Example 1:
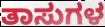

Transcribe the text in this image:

ತಾಸುಗಳ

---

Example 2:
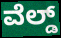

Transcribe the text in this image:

ವೆಲ್ಡ್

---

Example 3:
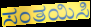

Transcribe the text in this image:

ಸಂತಯಿಸಿ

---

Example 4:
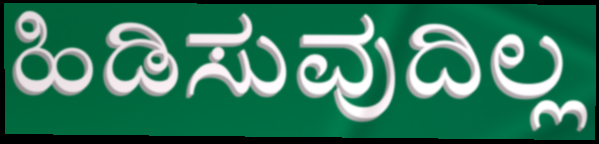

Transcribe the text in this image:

ಹಿಡಿಸುವುದಿಲ್ಲ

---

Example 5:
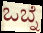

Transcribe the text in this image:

ಒಬ್ನೆ